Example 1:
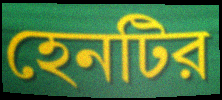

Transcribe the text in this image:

হেনটির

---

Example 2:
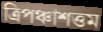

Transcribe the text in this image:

ত্রিপঞ্চাশত্তম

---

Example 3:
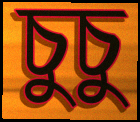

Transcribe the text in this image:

চুচু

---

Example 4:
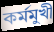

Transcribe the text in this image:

কর্মমুখী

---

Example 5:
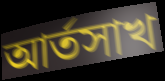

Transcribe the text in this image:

আর্তসাখ